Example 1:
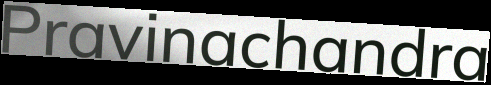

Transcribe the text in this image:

Pravinachandra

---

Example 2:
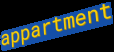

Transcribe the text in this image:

appartment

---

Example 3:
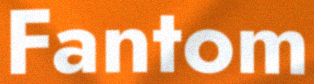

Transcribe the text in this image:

Fantom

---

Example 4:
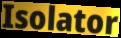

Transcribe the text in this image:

Isolator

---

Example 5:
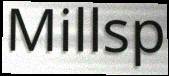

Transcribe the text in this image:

Millsp